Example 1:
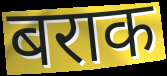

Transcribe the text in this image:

बराक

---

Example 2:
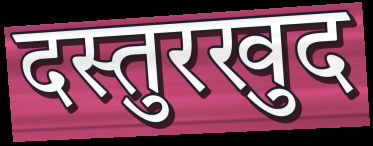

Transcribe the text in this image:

दस्तुरखुद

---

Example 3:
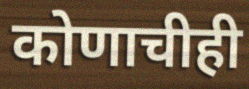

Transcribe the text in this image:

कोणाचीही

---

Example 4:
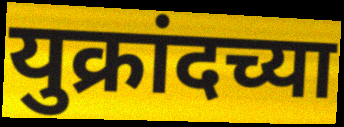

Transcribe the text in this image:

युक्रांदच्या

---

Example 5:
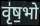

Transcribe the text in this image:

वृ॑ष॒भो